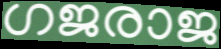
ഗജരാജ